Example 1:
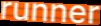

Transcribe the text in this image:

runner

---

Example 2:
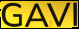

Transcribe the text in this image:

GAVI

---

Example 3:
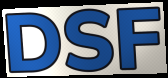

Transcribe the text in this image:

DSF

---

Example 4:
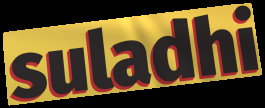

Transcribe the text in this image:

suladhi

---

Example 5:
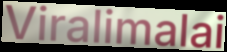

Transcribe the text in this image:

Viralimalai